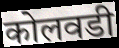
कोलवडी